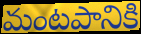
మంటపానికి